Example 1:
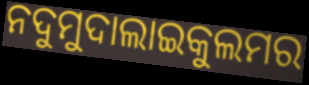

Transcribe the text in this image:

ନଦୁମୁଦାଲାଇକୁଲମର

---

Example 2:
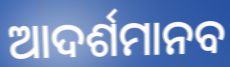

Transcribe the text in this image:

ଆଦର୍ଶମାନବ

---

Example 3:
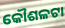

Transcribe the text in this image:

କୌଶଳଟା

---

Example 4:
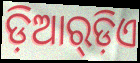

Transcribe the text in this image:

ଡ଼ିଆର୍‌ଡ଼ିଏ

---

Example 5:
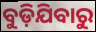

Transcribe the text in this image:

ବୁଡ଼ିଯିବାରୁ